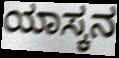
ಯಾಸ್ಕನ